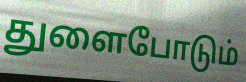
துளைபோடும்